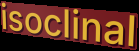
isoclinal